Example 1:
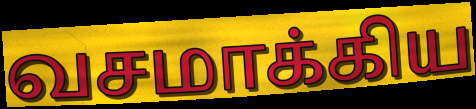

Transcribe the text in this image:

வசமாக்கிய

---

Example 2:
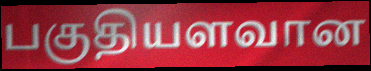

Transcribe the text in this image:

பகுதியளவான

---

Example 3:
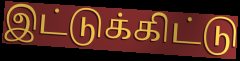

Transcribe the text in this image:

இட்டுக்கிட்டு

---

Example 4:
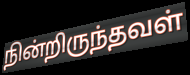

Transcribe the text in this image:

நின்றிருந்தவள்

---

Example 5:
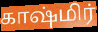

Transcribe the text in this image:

காஷ்மிர்